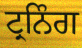
ਟ੍ਰਨਿੰਗ